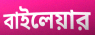
বাইলেয়ার